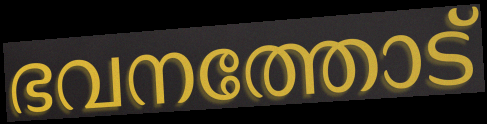
ഭവനത്തോട്